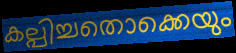
കല്പിച്ചതൊക്കെയും